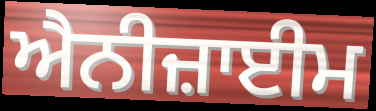
ਐਨੀਜ਼ਾਈਮ